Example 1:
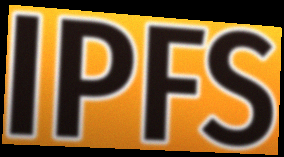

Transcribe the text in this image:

IPFS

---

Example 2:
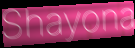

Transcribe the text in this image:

Shayona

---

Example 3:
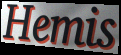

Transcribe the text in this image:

Hemis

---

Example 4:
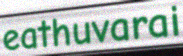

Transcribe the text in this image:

eathuvarai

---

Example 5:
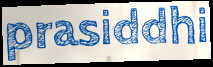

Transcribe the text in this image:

prasiddhi